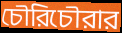
চৌরিচৌরার